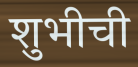
शुभीची